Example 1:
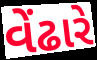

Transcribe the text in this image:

વેંઢારે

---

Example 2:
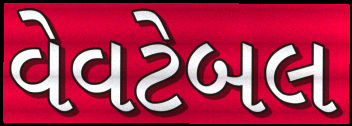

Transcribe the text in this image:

વેવટેબલ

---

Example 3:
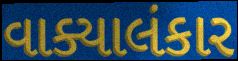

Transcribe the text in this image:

વાક્યાલંકાર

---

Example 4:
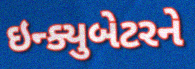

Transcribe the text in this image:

ઇન્ક્યુબેટરને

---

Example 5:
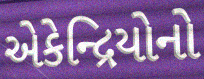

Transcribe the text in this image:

એકેન્દ્રિયોનો